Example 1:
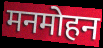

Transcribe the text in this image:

मनमोहन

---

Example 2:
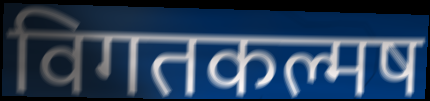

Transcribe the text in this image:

विगतकल्मष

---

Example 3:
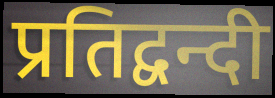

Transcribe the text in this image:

प्रतिद्वन्दी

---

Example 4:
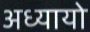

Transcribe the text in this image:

अध्यायो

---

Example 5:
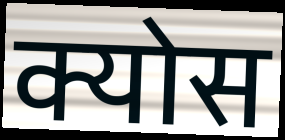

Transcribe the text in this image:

क्योस